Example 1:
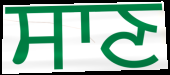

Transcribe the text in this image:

ਸਾਣ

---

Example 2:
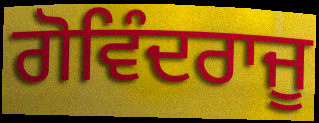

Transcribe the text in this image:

ਗੋਵਿੰਦਰਾਜੂ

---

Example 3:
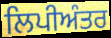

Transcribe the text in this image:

ਲਿਪੀਅੰਤਰ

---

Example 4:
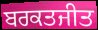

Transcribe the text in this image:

ਬਰਕਤਜੀਤ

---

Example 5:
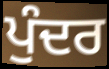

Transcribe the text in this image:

ਪੁੰਦਰ